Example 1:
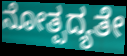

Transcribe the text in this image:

ನೋತ್ಪದ್ಯತೇ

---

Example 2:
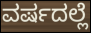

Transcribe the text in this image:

ವರ್ಷದಲ್ಲೆ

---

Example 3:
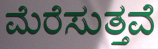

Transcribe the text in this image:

ಮೆರೆಸುತ್ತವೆ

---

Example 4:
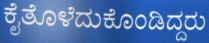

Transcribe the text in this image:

ಕೈತೊಳೆದುಕೊಂಡಿದ್ದರು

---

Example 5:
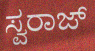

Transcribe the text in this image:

ಸ್ವರಾಜ್